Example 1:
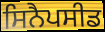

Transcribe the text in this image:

ਸਿਨੈਪਸੀਡ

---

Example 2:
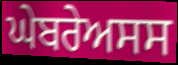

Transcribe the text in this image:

ਘੇਬਰੇਅਸਸ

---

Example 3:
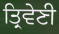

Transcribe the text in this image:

ਤ੍ਰਿਵੇਣੀ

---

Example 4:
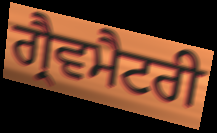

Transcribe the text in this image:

ਗ੍ਰੈਵਮੈਟਰੀ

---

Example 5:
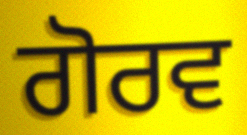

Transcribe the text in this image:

ਗੋਰਵ